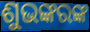
ଶୁଭଙ୍କରଙ୍କ